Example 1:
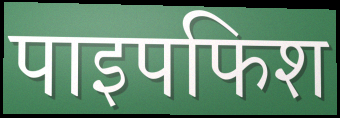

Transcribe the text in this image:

पाइपफिश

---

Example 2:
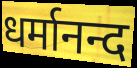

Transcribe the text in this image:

धर्मानन्द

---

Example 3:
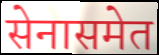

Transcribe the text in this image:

सेनासमेत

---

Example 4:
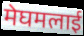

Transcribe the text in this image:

मेघमलाई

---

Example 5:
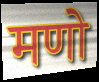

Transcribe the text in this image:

मणो